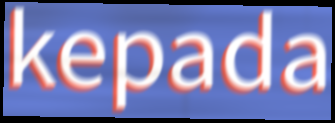
kepada